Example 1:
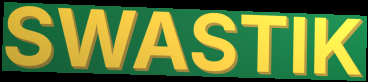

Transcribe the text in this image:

SWASTIK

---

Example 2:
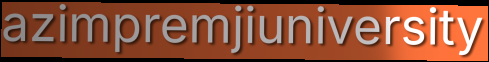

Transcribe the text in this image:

azimpremjiuniversity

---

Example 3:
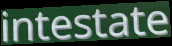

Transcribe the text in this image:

intestate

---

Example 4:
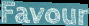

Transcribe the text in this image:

Favour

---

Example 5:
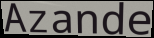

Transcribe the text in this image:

Azande